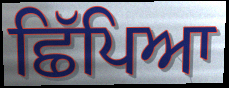
ਛਿੱਪਿਆ